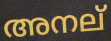
അനല്